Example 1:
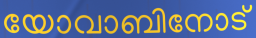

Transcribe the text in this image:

യോവാബിനോട്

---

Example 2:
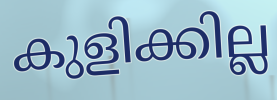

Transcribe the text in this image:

കുളിക്കില്ല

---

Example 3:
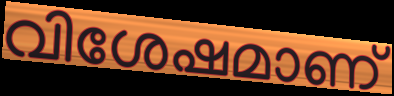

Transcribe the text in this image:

വിശേഷമാണ്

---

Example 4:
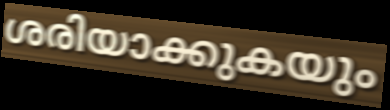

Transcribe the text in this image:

ശരിയാക്കുകയും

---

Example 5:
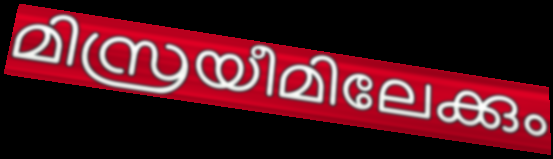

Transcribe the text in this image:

മിസ്രയീമിലേക്കും